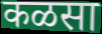
कळसा